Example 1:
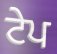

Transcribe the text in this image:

ਟੇਪ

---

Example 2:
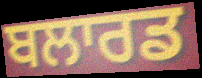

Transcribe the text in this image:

ਬਲਾਰਡ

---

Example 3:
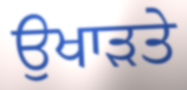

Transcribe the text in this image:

ਉਖਾੜਤੇ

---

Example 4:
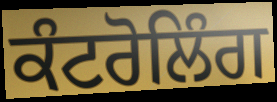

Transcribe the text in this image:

ਕੰਟਰੋਲਿੰਗ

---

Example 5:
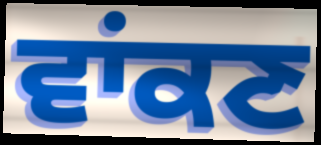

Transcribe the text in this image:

ਵਾਂਕਣ